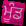
ਮੂੰਡ